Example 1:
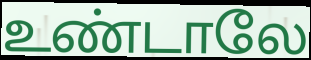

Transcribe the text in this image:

உண்டாலே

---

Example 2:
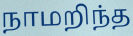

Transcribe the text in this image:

நாமறிந்த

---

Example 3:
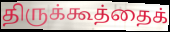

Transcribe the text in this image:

திருக்கூத்தைக்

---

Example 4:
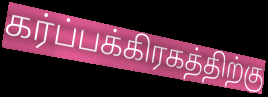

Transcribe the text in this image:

கர்ப்பக்கிரகத்திற்கு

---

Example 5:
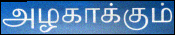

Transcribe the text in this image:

அழகாக்கும்